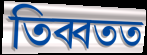
তিব্বতত